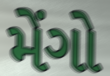
મેંગો